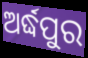
ଅର୍ଦ୍ଧପୁର